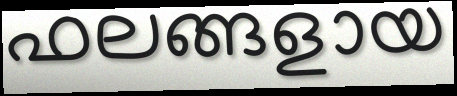
ഫലങ്ങളായ